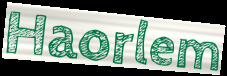
Haorlem